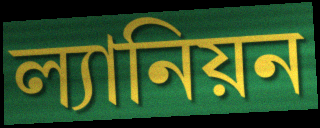
ল্যানিয়ন